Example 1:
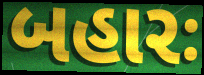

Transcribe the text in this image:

બહારઃ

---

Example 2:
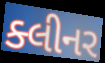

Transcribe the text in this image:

ક્લીનર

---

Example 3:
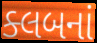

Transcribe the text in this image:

ક્લબનાં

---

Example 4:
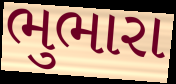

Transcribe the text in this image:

ભુભારા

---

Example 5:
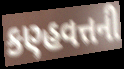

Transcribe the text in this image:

કણ્હવત્તની